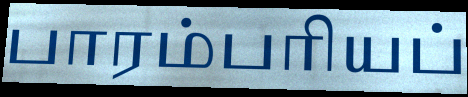
பாரம்பரியப்